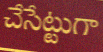
చేసేట్టుగా